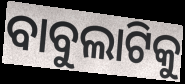
ବାବୁଲାଟିକୁ